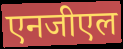
एनजीएल